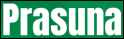
Prasuna